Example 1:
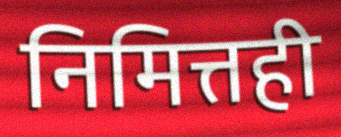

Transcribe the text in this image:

निमित्तही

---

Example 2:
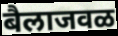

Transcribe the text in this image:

बैलाजवळ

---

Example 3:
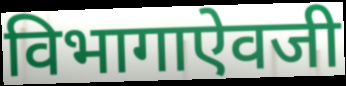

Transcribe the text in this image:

विभागाऐवजी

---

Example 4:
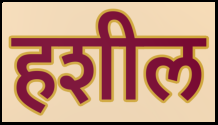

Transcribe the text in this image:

हशील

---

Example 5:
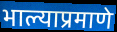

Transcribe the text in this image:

भाल्याप्रमाणे